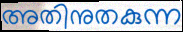
അതിനുതകുന്ന